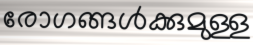
രോഗങ്ങൾക്കുമുള്ള